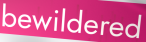
bewildered